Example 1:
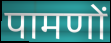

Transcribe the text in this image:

पामणों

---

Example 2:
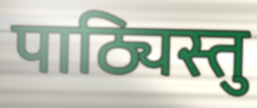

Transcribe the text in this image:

पाठ्यिस्तु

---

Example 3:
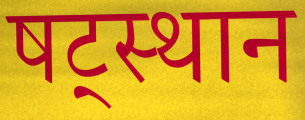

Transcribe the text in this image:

षट्स्थान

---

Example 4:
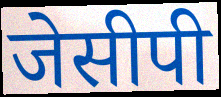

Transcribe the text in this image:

जेसीपी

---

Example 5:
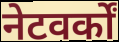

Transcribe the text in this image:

नेटवर्कों